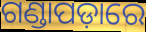
ଗଣ୍ଡାପଡ଼ାରେ